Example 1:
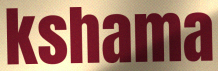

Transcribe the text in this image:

kshama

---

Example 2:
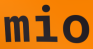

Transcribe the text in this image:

mio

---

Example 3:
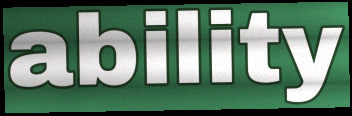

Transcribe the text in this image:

ability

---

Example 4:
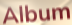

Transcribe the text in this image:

Album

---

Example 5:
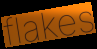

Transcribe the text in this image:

flakes